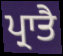
ਪ੍ਰਾਤੈ